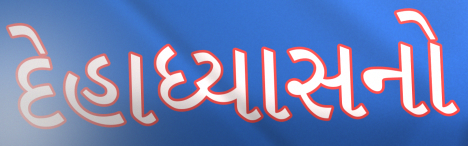
દેહાધ્યાસનો